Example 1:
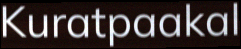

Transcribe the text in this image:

Kuratpaakal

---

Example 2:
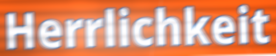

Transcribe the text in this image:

Herrlichkeit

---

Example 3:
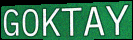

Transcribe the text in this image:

GOKTAY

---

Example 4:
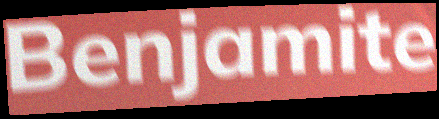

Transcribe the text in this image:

Benjamite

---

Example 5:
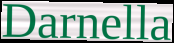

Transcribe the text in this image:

Darnella